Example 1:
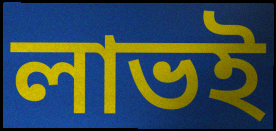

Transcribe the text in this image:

লাভই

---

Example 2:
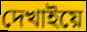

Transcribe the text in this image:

দেখাইয়ে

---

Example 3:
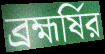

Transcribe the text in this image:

ব্রহ্মর্ষির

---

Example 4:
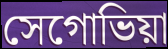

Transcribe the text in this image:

সেগোভিয়া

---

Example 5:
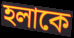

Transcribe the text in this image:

হলাকে